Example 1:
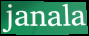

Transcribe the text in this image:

janala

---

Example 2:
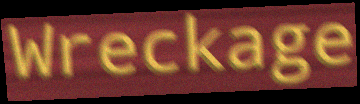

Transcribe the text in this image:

Wreckage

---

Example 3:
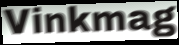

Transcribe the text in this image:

Vinkmag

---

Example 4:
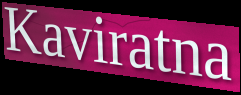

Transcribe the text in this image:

Kaviratna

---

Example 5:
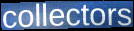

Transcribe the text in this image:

collectors